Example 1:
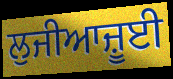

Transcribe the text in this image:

ਲੁਜੀਆਜ਼ੂਈ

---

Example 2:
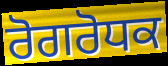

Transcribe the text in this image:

ਰੋਗਰੋਧਕ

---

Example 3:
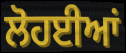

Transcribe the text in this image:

ਲੋਹਈਆਂ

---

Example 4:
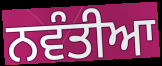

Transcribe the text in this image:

ਨਵੰਤੀਆ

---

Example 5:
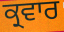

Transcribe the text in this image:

ਕ੍ਰਵਾਰ